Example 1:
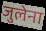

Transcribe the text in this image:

जुलेना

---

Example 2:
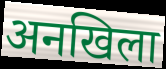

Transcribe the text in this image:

अनखिला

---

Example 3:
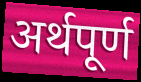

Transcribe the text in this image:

अर्थपूर्ण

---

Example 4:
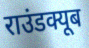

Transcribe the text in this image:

राउंडक्यूब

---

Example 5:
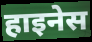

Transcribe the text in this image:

हाइनेस